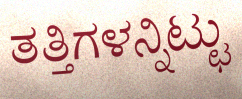
ತತ್ತಿಗಳನ್ನಿಟ್ಟು